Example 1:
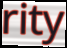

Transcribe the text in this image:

rity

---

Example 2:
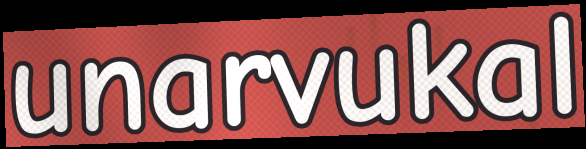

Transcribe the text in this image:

unarvukal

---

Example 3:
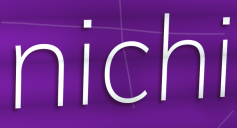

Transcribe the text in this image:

nichi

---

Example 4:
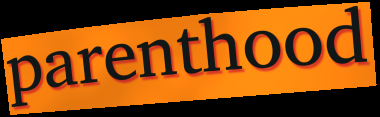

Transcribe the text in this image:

parenthood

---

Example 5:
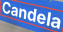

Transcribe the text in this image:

Candela